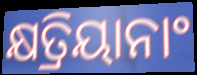
କ୍ଷତ୍ରିୟାନାଂ